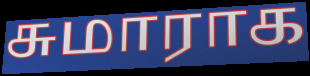
சுமாராக